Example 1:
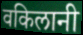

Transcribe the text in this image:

वकिलानी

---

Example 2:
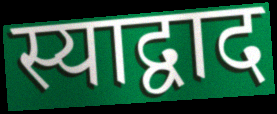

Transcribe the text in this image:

स्याद्वाद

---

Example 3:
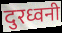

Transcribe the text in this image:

दुरध्वनी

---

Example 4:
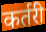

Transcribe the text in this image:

कर्तरी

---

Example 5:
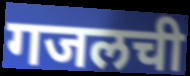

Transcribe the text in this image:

गजलची